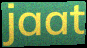
jaat